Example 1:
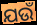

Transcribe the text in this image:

ଯଉଁ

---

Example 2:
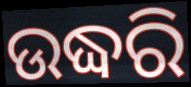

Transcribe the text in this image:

ଉଦ୍ଧରି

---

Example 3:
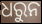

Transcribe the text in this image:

ଧରୁନ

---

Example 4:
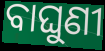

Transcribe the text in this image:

ବାଘୁଣୀ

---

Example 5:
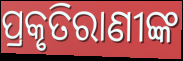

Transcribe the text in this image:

ପ୍ରକୃତିରାଣୀଙ୍କ